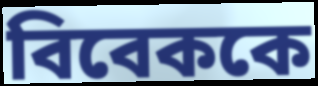
বিবেককে